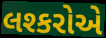
લશ્કરોએ